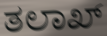
ತಲಾಖ್